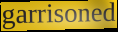
garrisoned